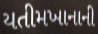
યતીમખાનાની